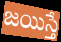
జయిస్తే